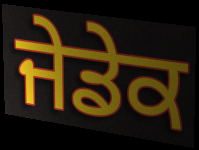
ਜੇਡੇਕ